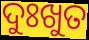
ଦୁଃଖୁତ